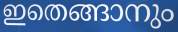
ഇതെങ്ങാനും